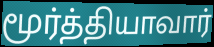
மூர்த்தியாவார்